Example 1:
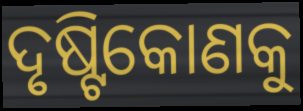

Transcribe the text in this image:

ଦୃଷ୍ଟିକୋଣକୁ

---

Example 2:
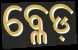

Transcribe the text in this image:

ବ୍ଳେଡ଼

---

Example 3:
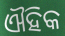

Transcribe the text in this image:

ଐହିକ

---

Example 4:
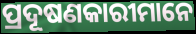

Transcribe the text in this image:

ପ୍ରଦୂଷଣକାରୀମାନେ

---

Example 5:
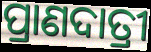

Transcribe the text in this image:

ପ୍ରାଣଦାତ୍ରୀ